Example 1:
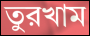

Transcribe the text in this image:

তুরখাম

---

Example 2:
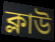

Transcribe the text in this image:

ক্লাউ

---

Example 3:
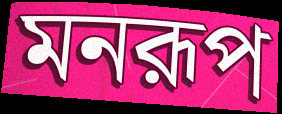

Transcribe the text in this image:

মনরূপ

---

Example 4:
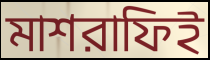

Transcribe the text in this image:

মাশরাফিই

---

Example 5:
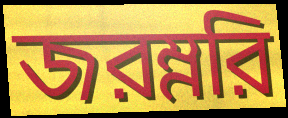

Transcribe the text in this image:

জরম্নরি